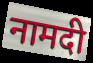
नामदी